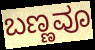
ಬಣ್ಣವೂ